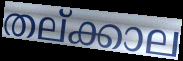
തല്ക്കാല